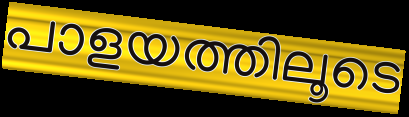
പാളയത്തിലൂടെ